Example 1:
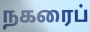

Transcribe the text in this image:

நகரைப்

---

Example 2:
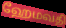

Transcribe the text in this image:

ஹேமவதி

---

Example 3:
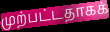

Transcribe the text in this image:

முற்பட்டதாகக்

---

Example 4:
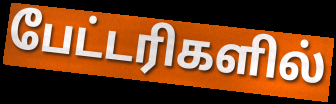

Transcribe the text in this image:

பேட்டரிகளில்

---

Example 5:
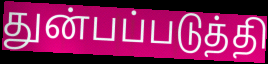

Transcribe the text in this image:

துன்பப்படுத்தி